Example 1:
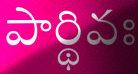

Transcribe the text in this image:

పార్థివః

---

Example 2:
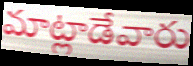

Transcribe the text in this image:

మాట్లాడేవారు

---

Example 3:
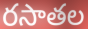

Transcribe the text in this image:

రసాతల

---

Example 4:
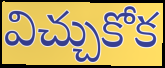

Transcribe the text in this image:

విచ్చుకోక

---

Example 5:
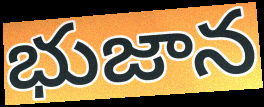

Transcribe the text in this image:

భుజాన